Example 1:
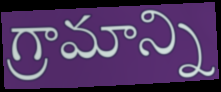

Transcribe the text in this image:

గ్రామాన్ని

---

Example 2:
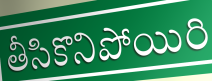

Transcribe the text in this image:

తీసికొనిపోయిరి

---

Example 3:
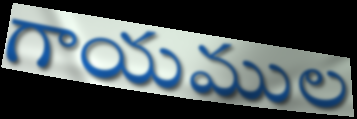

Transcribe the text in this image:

గాయముల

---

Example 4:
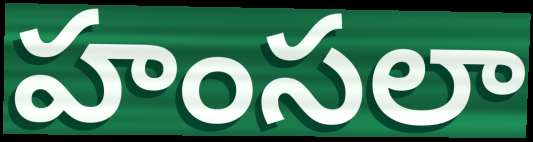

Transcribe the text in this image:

హంసలా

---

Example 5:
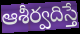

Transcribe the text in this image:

ఆశీర్వదిస్తే